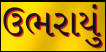
ઉભરાયું